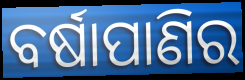
ବର୍ଷାପାଣିର